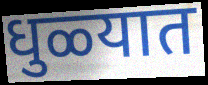
धुळ्यात